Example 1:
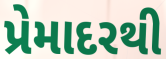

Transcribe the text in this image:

પ્રેમાદરથી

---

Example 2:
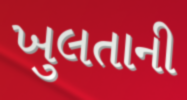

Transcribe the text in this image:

ખુલતાની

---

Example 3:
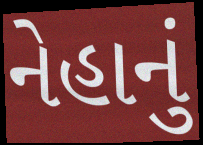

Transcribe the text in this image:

નેહાનું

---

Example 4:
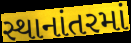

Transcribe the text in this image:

સ્થાનાંતરમાં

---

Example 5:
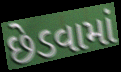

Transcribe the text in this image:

છેડવામાં